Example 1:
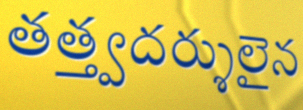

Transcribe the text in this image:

తత్త్వదర్శులైన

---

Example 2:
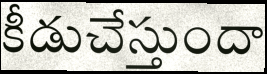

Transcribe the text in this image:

కీడుచేస్తుందా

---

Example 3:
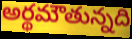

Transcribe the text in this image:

అర్థమౌతున్నది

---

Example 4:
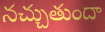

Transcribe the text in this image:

నచ్చుతుందా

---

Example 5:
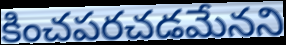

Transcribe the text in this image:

కించపరచడమేనని